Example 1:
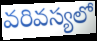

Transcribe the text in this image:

వరివస్యలో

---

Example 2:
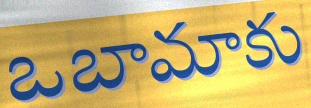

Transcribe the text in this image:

ఒబామాకు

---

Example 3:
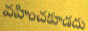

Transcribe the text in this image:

వహించకూడదు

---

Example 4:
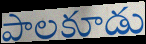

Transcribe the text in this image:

పాలకూడు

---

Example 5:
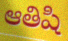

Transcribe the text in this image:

ఆతిషి